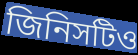
জিনিসটিও